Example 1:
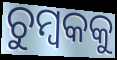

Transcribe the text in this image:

ଚୁମ୍ୱକକୁ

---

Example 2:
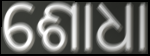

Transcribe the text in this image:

ଶୋଧା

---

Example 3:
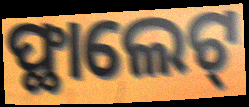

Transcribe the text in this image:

ଫ୍ଥାଲେଟ୍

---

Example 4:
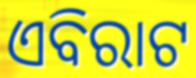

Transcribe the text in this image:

ଏବିରାଟ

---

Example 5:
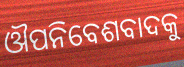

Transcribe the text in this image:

ଔପନିବେଶବାଦକୁ